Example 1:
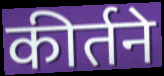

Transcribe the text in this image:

कीर्तने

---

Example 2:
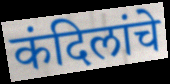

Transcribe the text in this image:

कंदिलांचे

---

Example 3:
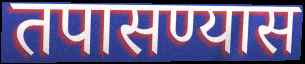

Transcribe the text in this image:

तपासण्यास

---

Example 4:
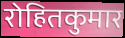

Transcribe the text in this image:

रोहितकुमार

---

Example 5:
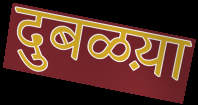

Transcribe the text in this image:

दुबळय़ा